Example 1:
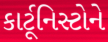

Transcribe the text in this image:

કાર્ટૂનિસ્ટોને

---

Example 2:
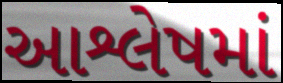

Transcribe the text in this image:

આશ્લેષમાં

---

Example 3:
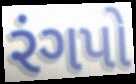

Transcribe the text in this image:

રંગપો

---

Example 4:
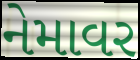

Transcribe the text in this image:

નેમાવર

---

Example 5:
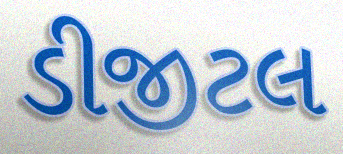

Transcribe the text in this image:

ડીજીટલ